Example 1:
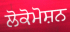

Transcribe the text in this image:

ਲੋਕੋਮੋਸ਼ਨ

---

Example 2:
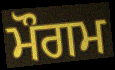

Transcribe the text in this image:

ਮੌਗਮ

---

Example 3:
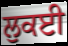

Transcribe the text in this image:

ਲੁਕਈ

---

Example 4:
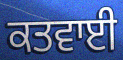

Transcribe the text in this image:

ਕਤਵਾਈ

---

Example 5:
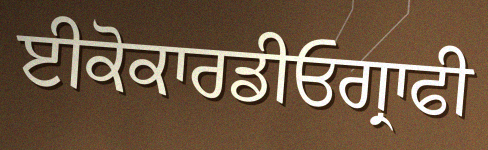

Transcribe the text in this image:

ਈਕੋਕਾਰਡੀਓਗ੍ਰਾਫੀ